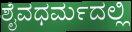
ಶೈವಧರ್ಮದಲ್ಲಿ